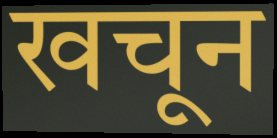
खचून